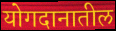
योगदानातील